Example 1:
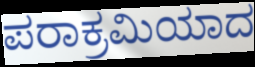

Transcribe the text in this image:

ಪರಾಕ್ರಮಿಯಾದ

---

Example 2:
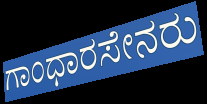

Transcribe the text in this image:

ಗಾಂಧಾರಸೇನರು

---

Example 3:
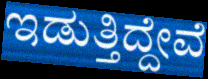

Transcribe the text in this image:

ಇಡುತ್ತಿದ್ದೇವೆ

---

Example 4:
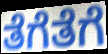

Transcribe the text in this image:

ತೆಗೆತೆಗೆ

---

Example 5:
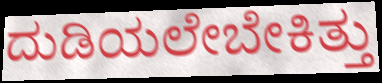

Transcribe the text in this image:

ದುಡಿಯಲೇಬೇಕಿತ್ತು